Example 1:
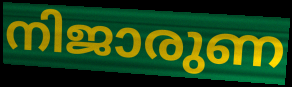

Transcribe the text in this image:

നിജാരുണ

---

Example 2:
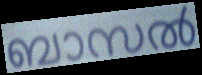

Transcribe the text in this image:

ബാസൽ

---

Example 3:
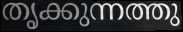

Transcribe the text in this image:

തൃക്കുന്നത്തു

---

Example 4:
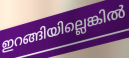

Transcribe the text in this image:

ഇറങ്ങിയില്ലെങ്കിൽ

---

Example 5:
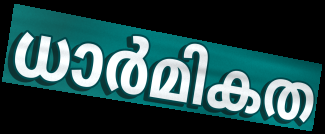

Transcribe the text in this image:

ധാർമികത